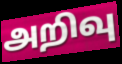
அறிவு